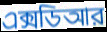
এক্সডিআর